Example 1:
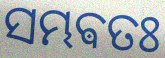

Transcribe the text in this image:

ସମ୍ଭଵତଃ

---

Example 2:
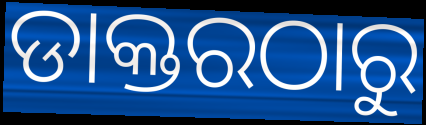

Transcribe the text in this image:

ଡାକ୍ତରଠାରୁ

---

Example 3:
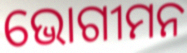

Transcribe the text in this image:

ଭୋଗୀମନ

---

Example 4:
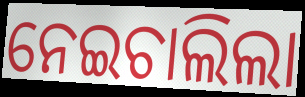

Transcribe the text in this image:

ନେଇଚାଲିଲା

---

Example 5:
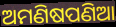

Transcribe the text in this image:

ଅମଣିଷପଣିଆ